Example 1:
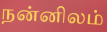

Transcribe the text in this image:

நன்னிலம்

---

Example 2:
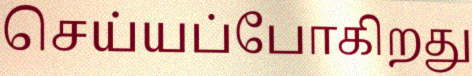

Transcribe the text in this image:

செய்யப்போகிறது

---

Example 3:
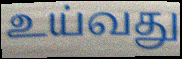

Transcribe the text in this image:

உய்வது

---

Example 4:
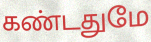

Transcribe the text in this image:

கண்டதுமே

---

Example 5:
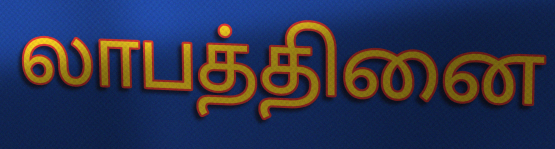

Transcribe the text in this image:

லாபத்தினை